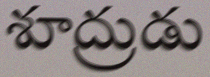
శూద్రుడు